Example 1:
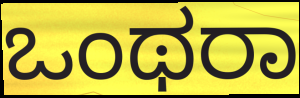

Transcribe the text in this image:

ಒಂಥರಾ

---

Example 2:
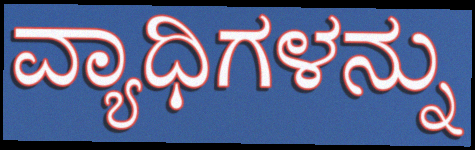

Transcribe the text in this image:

ವ್ಯಾಧಿಗಳನ್ನು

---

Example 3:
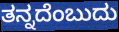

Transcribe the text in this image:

ತನ್ನದೆಂಬುದು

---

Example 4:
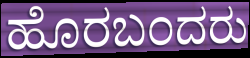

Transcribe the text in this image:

ಹೊರಬಂದರು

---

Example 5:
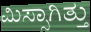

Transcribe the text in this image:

ಮಿಸ್ಸಾಗಿತ್ತು